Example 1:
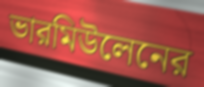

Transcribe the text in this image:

ভারমিউলেনের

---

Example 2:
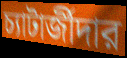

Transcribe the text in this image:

চ্যাটার্জীদার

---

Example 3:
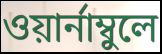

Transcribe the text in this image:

ওয়ার্নাম্বুলে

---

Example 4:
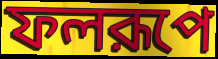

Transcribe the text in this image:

ফলরূপে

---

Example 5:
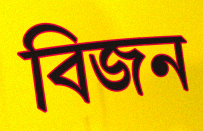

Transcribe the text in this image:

বিজন